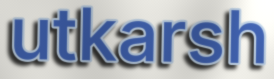
utkarsh